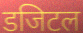
डजिटल